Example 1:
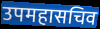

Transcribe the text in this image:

उपमहासचिव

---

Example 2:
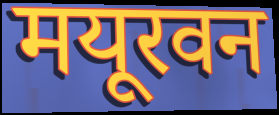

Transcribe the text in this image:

मयूरवन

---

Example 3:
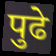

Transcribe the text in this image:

पुढे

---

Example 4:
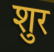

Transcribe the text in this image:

शुर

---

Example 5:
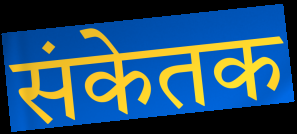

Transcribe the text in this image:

संकेतक